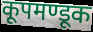
कूपमण्डूक